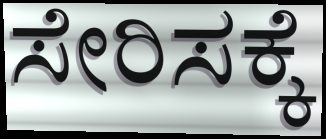
ಸೇರಿಸಕ್ಕೆ